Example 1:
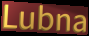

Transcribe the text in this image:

Lubna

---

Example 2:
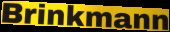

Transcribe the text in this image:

Brinkmann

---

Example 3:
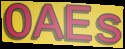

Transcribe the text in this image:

OAEs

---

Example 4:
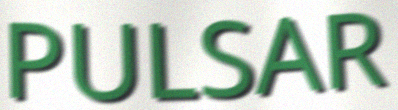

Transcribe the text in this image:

PULSAR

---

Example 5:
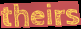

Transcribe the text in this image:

theirs